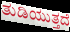
ತುಡಿಯುತ್ತದೆ